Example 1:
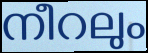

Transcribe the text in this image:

നീറലും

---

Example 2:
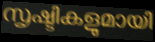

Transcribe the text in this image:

സൃഷ്ടികളുമായി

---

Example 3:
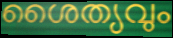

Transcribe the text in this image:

ശൈത്യവും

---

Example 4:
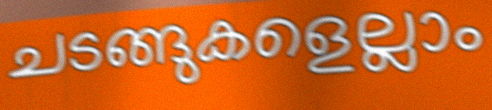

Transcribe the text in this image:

ചടങ്ങുകളെല്ലാം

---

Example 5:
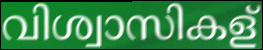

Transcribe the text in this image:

വിശ്വാസികള്